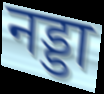
नड्डा